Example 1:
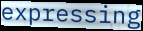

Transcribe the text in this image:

expressing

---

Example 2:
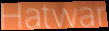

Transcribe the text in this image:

Hatwar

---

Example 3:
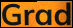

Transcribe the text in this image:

Grad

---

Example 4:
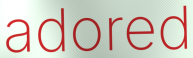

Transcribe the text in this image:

adored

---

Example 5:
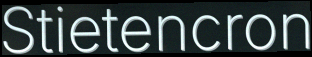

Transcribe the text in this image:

Stietencron